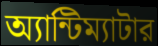
অ্যান্টিম্যাটার